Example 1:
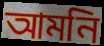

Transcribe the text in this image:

আমনি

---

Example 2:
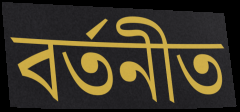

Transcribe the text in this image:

বৰ্তনীত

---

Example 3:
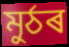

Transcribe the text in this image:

মুঠৰ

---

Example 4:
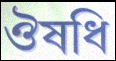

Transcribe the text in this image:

ঔষধি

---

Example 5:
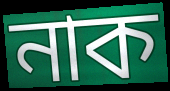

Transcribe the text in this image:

নাক